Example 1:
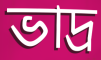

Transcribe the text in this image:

ভাদ্র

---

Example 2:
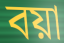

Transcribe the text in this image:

বয়া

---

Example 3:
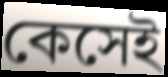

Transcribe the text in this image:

কেসেই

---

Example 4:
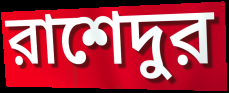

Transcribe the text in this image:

রাশেদুর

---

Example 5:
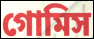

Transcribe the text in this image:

গোমিস